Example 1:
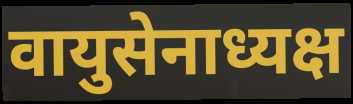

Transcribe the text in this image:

वायुसेनाध्यक्ष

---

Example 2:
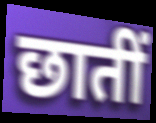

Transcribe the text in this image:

छातीं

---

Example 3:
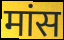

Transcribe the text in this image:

मांस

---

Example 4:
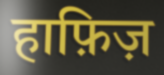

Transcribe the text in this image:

हाफ़िज़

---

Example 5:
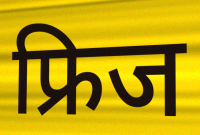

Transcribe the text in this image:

फ्रिज